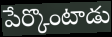
పేర్కొంటాడు